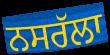
ਨਸਰੱਲਾ